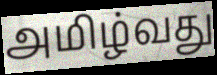
அமிழ்வது